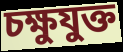
চক্ষুযুক্ত